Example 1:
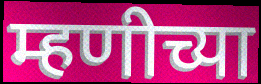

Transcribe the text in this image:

म्हणीच्या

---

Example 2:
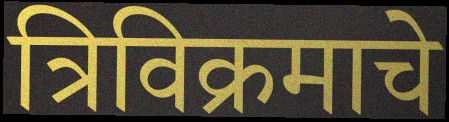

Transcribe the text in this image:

त्रिविक्रमाचे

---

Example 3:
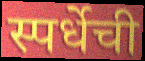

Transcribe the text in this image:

स्पर्धेची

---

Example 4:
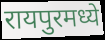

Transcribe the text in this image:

रायपुरमध्ये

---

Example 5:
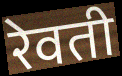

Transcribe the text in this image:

रेवती